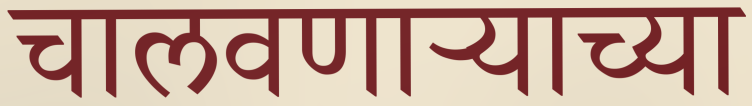
चालवणार्‍याच्या